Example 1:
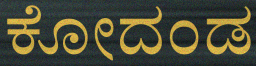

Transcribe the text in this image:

ಕೋದಂಡ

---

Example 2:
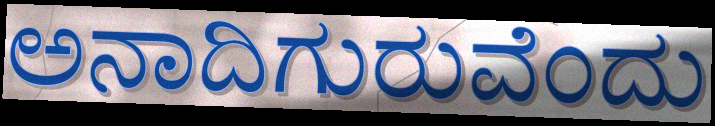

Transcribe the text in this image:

ಅನಾದಿಗುರುವೆಂದು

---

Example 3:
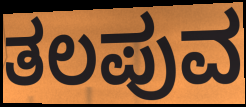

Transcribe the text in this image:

ತಲಪುವ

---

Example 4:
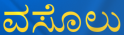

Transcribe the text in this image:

ವಸೊಲು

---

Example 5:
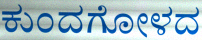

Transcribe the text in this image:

ಕುಂದಗೋಳದ